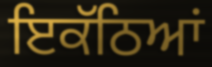
ਇਕੱਠਿਆਂ